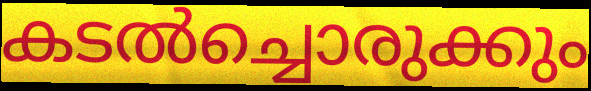
കടൽച്ചൊരുക്കും